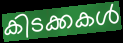
കിടക്കകൾ